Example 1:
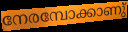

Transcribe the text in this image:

നേരമ്പോക്കാണു്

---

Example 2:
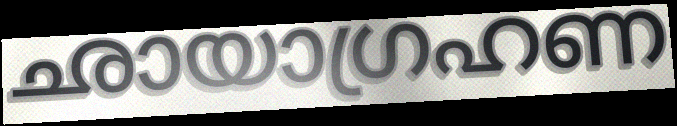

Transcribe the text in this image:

ഛായാഗ്രഹണ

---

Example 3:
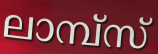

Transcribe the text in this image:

ലാമ്പ്സ്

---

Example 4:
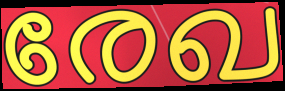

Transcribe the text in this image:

രേഖ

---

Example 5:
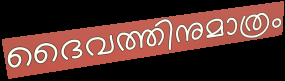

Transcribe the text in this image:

ദൈവത്തിനുമാത്രം